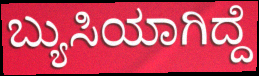
ಬ್ಯುಸಿಯಾಗಿದ್ದೆ